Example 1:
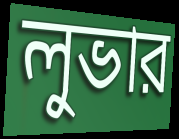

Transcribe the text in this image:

লুভার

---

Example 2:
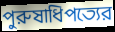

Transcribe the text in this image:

পুরুষাধিপত্যের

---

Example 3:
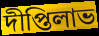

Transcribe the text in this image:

দীপ্তিলাভ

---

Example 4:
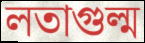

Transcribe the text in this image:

লতাগুল্ম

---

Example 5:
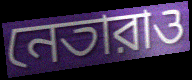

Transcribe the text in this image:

নেতারাও